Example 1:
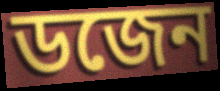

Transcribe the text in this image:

ডজেন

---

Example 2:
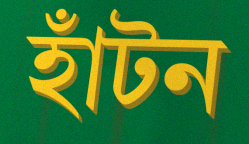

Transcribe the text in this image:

হাঁটন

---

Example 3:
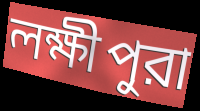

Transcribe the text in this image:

লক্ষীপুরা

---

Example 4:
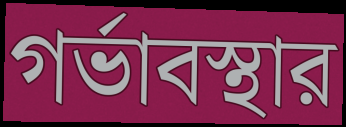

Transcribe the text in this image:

গর্ভাবস্থার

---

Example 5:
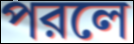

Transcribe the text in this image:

পরলে